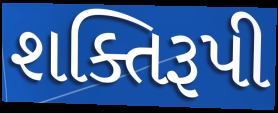
શક્તિરૂપી